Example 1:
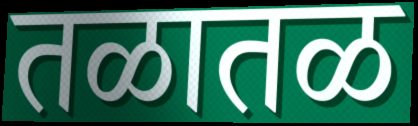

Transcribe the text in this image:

तळातळ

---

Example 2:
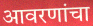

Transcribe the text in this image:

आवरणांचा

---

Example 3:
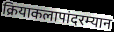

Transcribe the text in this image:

क्रियाकलापांदरम्यान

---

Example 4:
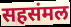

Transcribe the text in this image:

सहसंमल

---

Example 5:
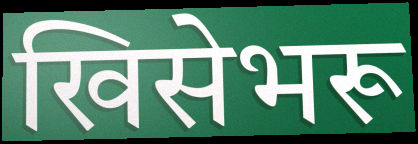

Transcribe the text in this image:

खिसेभरू